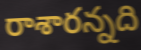
రాశారన్నది